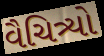
વૈચિત્ર્યો